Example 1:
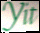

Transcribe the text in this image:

Yit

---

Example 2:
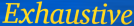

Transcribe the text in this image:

Exhaustive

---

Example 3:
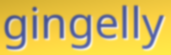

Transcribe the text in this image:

gingelly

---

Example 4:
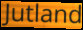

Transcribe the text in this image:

Jutland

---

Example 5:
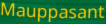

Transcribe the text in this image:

Mauppasant